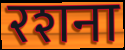
रशना